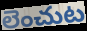
లెంచుట